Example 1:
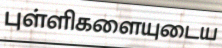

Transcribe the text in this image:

புள்ளிகளையுடைய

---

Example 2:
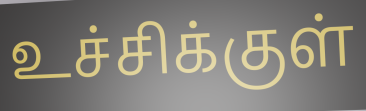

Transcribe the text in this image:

உச்சிக்குள்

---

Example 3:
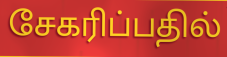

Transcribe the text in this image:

சேகரிப்பதில்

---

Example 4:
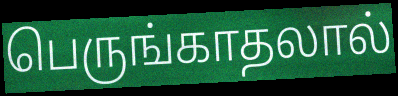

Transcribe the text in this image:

பெருங்காதலால்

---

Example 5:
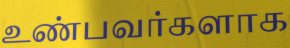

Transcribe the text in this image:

உண்பவர்களாக